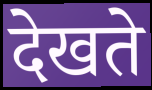
देखते